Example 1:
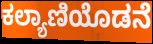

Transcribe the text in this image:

ಕಲ್ಯಾಣಿಯೊಡನೆ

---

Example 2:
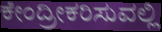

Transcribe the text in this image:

ಕೇಂದ್ರೀಕರಿಸುವಲ್ಲಿ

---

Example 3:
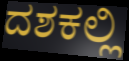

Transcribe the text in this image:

ದಶಕಲ್ಲಿ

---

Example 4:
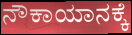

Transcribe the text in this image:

ನೌಕಾಯಾನಕ್ಕೆ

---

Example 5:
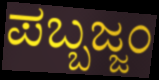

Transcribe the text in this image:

ಪಬ್ಬಜ್ಜಂ